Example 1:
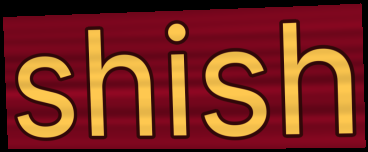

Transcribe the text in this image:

shish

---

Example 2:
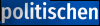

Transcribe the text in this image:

politischen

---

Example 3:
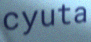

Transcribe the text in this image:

cyuta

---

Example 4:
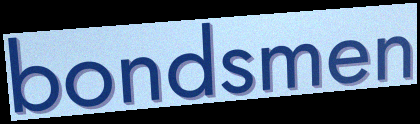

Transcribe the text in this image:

bondsmen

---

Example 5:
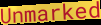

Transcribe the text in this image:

Unmarked